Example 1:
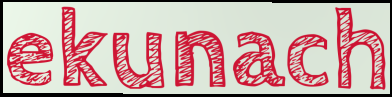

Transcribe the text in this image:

ekunach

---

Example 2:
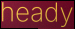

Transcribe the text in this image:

heady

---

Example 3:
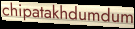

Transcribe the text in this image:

chipatakhdumdum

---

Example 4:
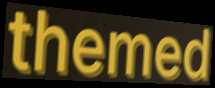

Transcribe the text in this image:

themed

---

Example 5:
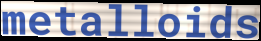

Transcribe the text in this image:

metalloids